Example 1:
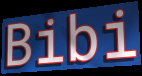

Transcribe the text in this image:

Bibi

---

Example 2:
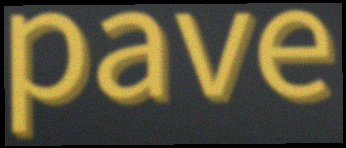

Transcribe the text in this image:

pave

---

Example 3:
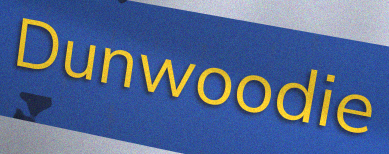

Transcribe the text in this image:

Dunwoodie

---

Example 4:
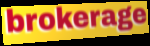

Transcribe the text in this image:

brokerage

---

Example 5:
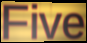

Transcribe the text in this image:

Five